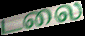
டலை